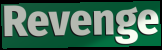
Revenge